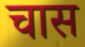
चास